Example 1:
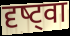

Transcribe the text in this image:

दृष्ट्‍वा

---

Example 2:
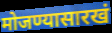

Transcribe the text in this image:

मोजण्यासारखं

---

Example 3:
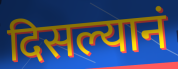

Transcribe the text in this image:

दिसल्यानं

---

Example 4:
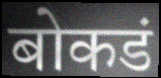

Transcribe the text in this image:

बोकडं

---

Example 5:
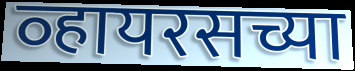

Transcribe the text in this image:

व्हायरसच्या